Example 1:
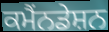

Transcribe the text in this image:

ਕਮੈਂਨਡੇਸ਼ਨ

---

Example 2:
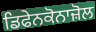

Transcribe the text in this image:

ਡਿਫੇਨਕੋਨਾਜ਼ੋਲ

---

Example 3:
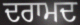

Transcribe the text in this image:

ਦਰਾਮਦ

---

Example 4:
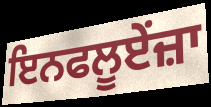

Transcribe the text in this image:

ਇਨਫਲੂਏਂਜ਼ਾ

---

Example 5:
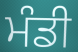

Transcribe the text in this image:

ਮੰਡੀ